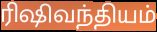
ரிஷிவந்தியம்